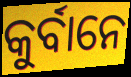
କୁର୍ବାନେ